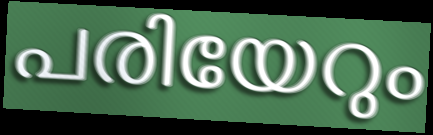
പരിയേറും